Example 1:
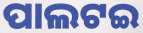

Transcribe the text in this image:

ପାଲଟଇ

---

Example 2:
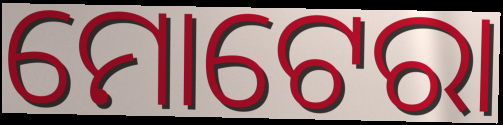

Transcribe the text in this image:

ମୋଟେରା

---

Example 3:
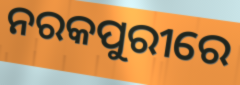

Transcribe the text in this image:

ନରକପୁରୀରେ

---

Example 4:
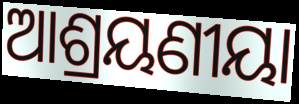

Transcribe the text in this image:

ଆଶ୍ରୟଣୀୟା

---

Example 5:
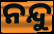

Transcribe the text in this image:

ନନ୍ଦୁ